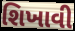
શિખાવી